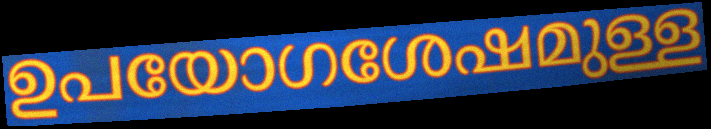
ഉപയോഗശേഷമുള്ള